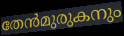
തേൻമുരുകനും